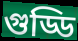
গুড্ডি